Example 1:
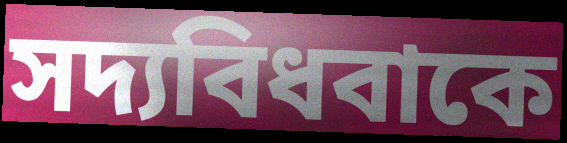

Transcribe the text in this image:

সদ্যবিধবাকে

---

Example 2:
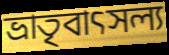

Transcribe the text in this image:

ভ্রাতৃবাৎসল্য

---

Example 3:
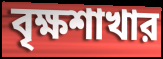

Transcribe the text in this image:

বৃক্ষশাখার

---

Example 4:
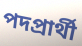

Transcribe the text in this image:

পদপ্রার্থী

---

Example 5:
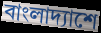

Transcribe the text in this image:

বাংলাদ্যাশে